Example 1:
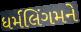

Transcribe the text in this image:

ધર્મલિંગમને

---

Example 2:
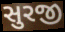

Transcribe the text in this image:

સુરજી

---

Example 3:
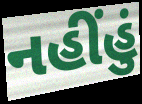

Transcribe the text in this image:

નહીંહું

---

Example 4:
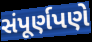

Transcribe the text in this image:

સંપૂર્ણપણે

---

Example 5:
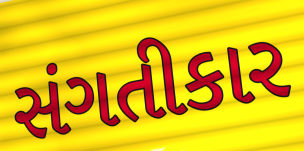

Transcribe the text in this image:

સંગતીકાર